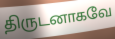
திருடனாகவே